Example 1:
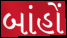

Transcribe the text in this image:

બાંહોં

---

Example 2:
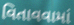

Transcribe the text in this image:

વિતાવવામાં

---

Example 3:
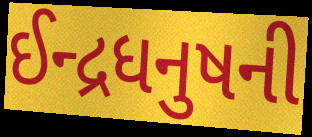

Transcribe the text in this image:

ઈન્દ્રધનુષની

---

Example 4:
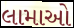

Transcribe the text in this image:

લામાઓ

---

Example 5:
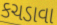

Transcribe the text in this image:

કચડાવા